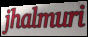
jhalmuri